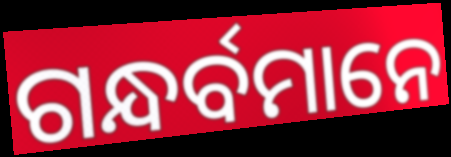
ଗନ୍ଧର୍ବମାନେ